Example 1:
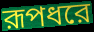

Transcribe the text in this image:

রূপধরে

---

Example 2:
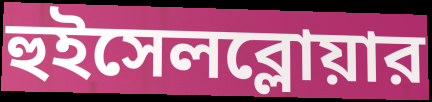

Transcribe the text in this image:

হুইসেলব্লোয়ার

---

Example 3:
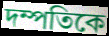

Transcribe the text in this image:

দম্পতিকে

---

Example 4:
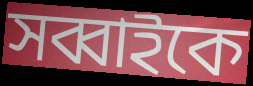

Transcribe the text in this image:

সব্বাইকে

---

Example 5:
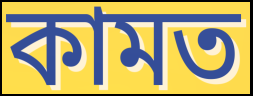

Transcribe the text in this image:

কামত